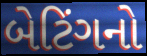
બેટિંગનો